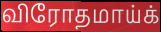
விரோதமாய்க்